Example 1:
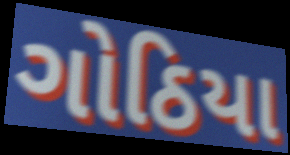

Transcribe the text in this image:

ગોઠિયા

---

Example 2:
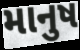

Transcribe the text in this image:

માનુષ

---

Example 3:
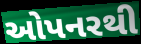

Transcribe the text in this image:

ઓપનરથી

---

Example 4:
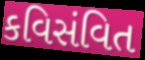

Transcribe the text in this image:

કવિસંવિત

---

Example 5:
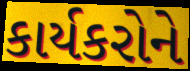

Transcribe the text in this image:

કાર્યકરોને